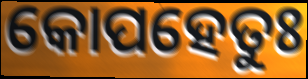
କୋପହେତୁଃ